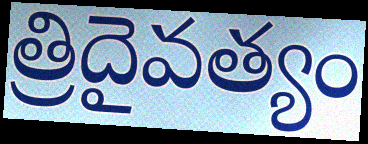
త్రిదైవత్యం